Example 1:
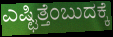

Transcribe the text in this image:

ಎಷ್ಟಿತ್ತೆಂಬುದಕ್ಕೆ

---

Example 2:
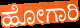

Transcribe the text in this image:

ಹೋಗಾರಿ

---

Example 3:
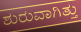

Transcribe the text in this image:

ಶುರುವಾಗಿತ್ತು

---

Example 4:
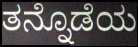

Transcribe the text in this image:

ತನ್ನೊಡೆಯ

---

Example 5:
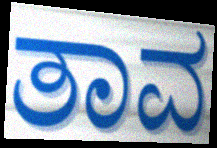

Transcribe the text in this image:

ತಾವ